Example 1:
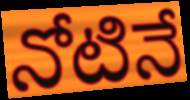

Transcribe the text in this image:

నోటినే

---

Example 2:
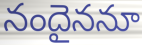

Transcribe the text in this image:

నందైననూ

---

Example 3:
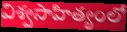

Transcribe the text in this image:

విశ్వసాహిత్యంలో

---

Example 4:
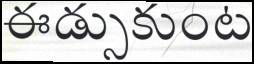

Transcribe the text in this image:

ఈడ్సుకుంట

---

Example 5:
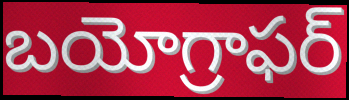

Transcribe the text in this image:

బయోగ్రాఫర్